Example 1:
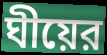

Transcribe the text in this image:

ঘীয়ের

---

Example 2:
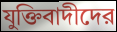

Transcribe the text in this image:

যুক্তিবাদীদের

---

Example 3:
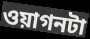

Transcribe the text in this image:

ওয়াগনটা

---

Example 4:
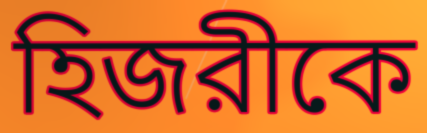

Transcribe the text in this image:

হিজরীকে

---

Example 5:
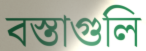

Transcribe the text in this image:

বস্তাগুলি